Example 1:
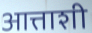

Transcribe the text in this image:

आत्ताशी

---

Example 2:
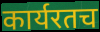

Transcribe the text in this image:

कार्यरतच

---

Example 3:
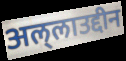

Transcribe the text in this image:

अल्लाउद्दीन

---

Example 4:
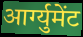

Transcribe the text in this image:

आर्ग्युमेंट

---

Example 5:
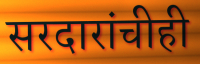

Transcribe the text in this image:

सरदारांचीही